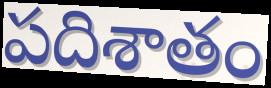
పదిశాతం